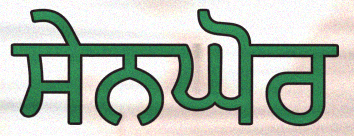
ਸੇਨਘੋਰ